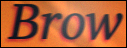
Brow